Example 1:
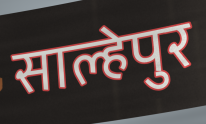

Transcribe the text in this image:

साल्हेपुर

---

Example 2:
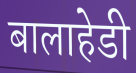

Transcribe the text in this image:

बालाहेडी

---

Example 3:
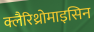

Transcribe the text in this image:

क्लैरिथ्रोमाइसिन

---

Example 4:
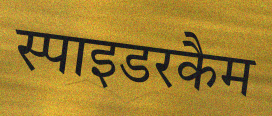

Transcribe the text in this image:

स्पाइडरकैम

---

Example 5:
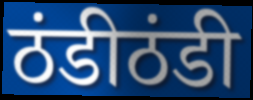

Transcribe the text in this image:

ठंडीठंडी